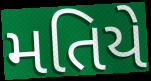
મતિયે